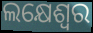
ଲକ୍ଷେଶ୍ୱର